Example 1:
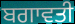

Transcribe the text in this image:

ਬਗਾਵਤੀ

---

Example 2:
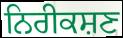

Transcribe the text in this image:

ਨਿਰੀਕਸ਼ਣ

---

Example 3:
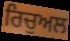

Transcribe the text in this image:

ਰਿਚੁਅਲ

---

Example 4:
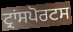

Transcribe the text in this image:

ਟ੍ਰਾਂਸਪੋਰਟਸ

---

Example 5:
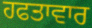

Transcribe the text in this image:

ਹਫਤਾਵਾਰ